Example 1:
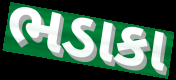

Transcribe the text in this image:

ભડાકા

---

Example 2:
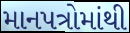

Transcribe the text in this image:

માનપત્રોમાંથી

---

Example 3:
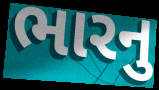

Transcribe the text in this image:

ભારનુ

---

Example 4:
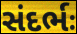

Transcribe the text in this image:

સંદર્ભઃ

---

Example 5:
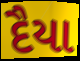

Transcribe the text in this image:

દૈયા